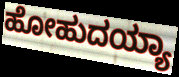
ಹೋಹುದಯ್ಯಾ